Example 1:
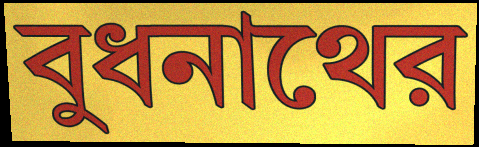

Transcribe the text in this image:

বুধনাথের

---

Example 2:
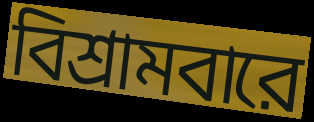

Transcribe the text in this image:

বিশ্রামবারে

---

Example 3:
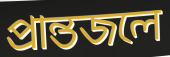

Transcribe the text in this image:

প্রান্তজলে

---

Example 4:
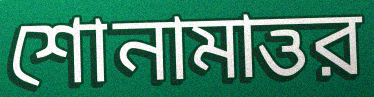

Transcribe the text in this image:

শোনামাত্তর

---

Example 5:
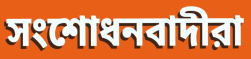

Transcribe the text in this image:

সংশোধনবাদীরা